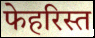
फेहरिस्‍त